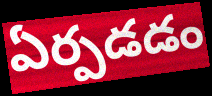
ఏర్పడడం